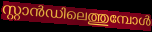
സ്റ്റാൻഡിലെത്തുമ്പോൾ